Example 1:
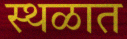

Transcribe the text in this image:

स्थळात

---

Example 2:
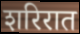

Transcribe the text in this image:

शरिरात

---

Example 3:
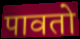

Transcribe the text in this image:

पावतो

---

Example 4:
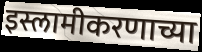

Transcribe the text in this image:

इस्लामीकरणाच्या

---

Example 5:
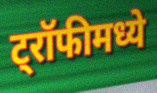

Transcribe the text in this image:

ट्रॉफीमध्ये